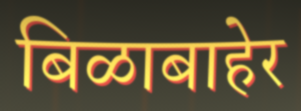
बिळाबाहेर